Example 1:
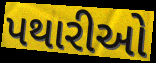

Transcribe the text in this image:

પથારીઓ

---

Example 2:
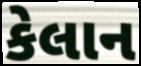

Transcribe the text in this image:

કેલાન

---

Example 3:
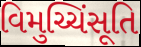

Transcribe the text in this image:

વિમુચ્ચિંસૂતિ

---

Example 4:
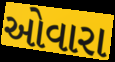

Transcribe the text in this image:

ઓવારા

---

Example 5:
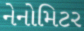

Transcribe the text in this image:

નેનોમિટર